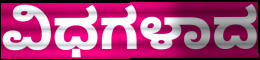
ವಿಧಗಳಾದ